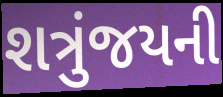
શત્રુંજયની